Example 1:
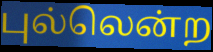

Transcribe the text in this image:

புல்லென்ற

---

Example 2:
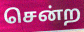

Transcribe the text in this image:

சென்ற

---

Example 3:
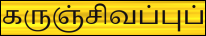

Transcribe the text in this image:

கருஞ்சிவப்புப்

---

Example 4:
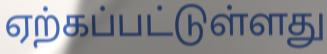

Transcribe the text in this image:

ஏற்கப்பட்டுள்ளது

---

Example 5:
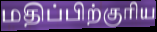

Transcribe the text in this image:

மதிப்பிற்குரிய